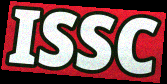
ISSC